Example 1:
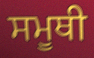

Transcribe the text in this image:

ਸਮੂਥੀ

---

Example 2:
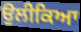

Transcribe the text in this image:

ਉਲੀਕਿਆ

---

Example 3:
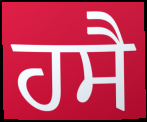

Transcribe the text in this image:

ਹਸੈ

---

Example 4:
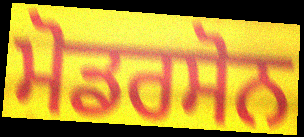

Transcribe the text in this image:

ਮੋਡਰਸੋਨ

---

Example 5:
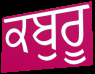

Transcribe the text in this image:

ਕਬੁਰੂ